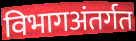
विभागअंतर्गत